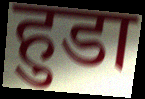
हुडा